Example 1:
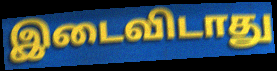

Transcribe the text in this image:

இடைவிடாது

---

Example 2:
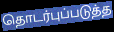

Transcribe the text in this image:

தொடர்புப்படுத்த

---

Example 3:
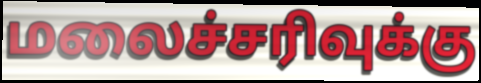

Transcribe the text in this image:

மலைச்சரிவுக்கு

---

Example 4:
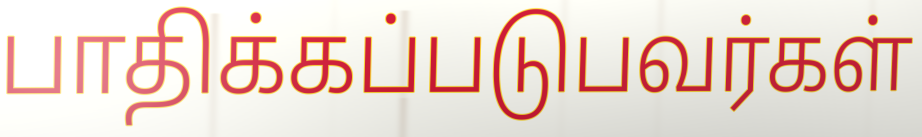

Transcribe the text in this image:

பாதிக்கப்படுபவர்கள்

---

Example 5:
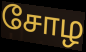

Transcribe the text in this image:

சோழ